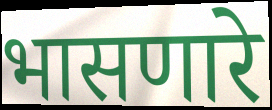
भासणारे